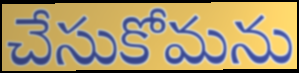
చేసుకోమను